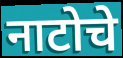
नाटोचे